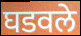
घडवले